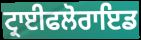
ਟ੍ਰਾਈਫਲੋਰਾਇਡ